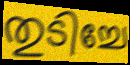
തുടിച്ചേ